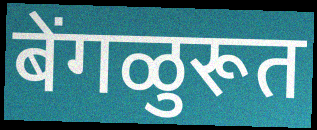
बेंगळुरूत